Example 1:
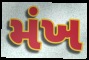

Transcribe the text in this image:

મંખ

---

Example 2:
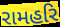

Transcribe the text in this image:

રામહરિ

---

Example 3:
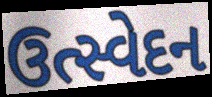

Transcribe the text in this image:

ઉત્સ્વેદન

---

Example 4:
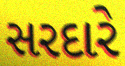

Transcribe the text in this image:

સરદારે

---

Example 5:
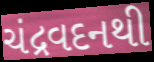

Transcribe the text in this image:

ચંદ્રવદનથી